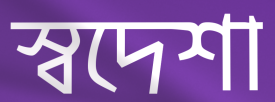
স্বদেশা